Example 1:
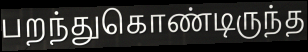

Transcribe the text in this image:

பறந்துகொண்டிருந்த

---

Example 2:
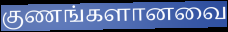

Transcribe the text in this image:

குணங்களானவை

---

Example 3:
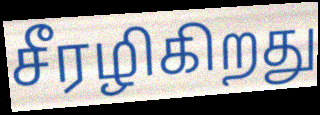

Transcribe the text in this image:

சீரழிகிறது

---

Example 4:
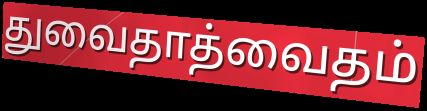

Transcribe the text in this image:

துவைதாத்வைதம்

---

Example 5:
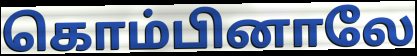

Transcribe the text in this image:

கொம்பினாலே